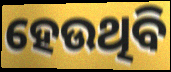
ହେଉଥିବି